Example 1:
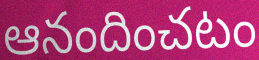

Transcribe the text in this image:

ఆనందించటం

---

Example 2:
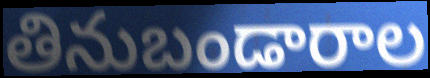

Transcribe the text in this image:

తినుబండారాల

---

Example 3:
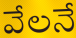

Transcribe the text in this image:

వేలనే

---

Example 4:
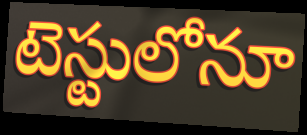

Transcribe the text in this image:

టెస్టులోనూ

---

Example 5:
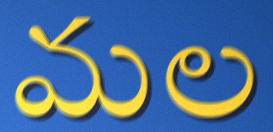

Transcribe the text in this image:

మల